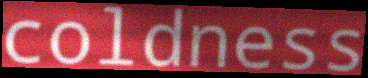
coldness